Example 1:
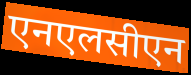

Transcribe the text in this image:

एनएलसीएन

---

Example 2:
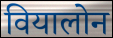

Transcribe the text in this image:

वियालोन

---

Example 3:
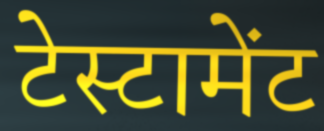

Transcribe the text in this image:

टेस्टामेंट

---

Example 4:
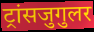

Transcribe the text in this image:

ट्रांसजुगुलर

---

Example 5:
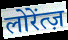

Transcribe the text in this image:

लोरेंत्ज़